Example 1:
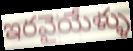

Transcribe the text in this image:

ఇరవైయేళ్ళు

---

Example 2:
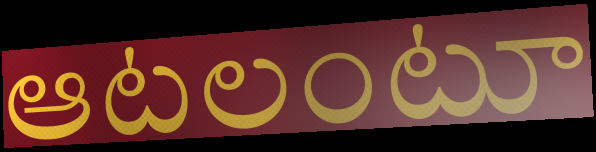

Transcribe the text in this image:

ఆటలంటూ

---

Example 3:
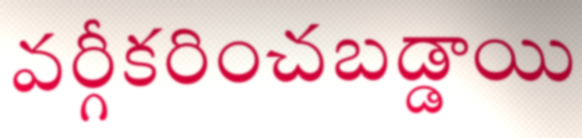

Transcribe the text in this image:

వర్గీకరించబడ్డాయి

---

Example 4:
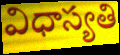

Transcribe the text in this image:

విధాస్యతి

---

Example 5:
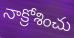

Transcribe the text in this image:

నాక్రోశించు